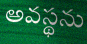
అవస్థను